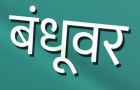
बंधूवर